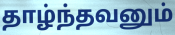
தாழ்ந்தவனும்